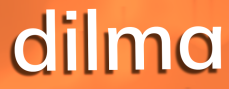
dilma